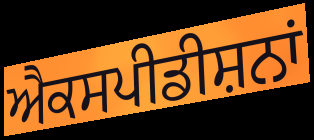
ਐਕਸਪੀਡੀਸ਼ਨਾਂ